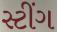
સ્ટીંગ